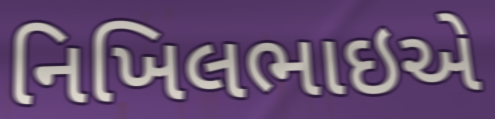
નિખિલભાઇએ